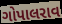
ગોપાલરાવ